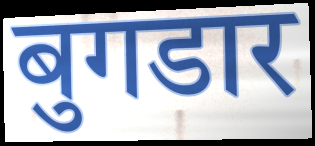
बुगडार